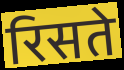
रिसते